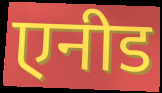
एनीड